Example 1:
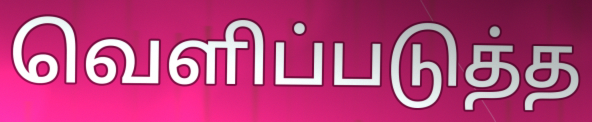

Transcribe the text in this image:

வெளிப்படுத்த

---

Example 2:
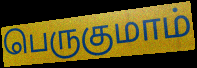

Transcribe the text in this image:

பெருகுமாம்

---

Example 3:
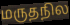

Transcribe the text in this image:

மருதநில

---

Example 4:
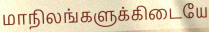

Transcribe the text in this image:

மாநிலங்களுக்கிடையே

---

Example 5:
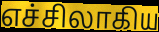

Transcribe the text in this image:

எச்சிலாகிய